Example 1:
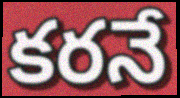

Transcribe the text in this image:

కరనే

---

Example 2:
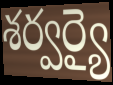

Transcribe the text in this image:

శర్వర్యై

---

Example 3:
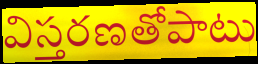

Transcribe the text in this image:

విస్తరణతోపాటు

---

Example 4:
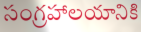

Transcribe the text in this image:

సంగ్రహాలయానికి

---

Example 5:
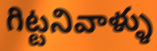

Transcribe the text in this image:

గిట్టనివాళ్ళు